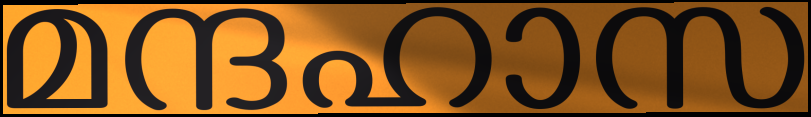
മന്ദഹാസ